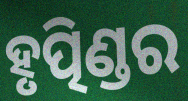
ହୃତ୍ପିଣ୍ଡର